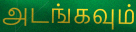
அடங்கவும்